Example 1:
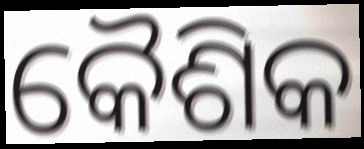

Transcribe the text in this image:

କୈଶିକ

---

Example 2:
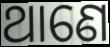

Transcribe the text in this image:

ଥାଣେ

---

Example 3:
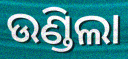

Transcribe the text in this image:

ଉଣ୍ଡିଲା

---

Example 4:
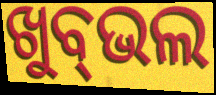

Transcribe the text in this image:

ଖୁବ୍‌ଭଲ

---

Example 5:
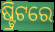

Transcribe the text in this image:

ଷ୍ଟ୍ରିଟରେ